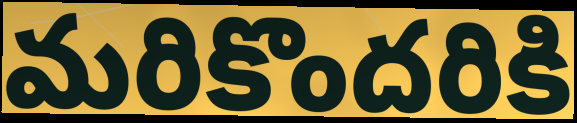
మరికొందరికి